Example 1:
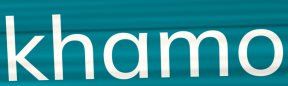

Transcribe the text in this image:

khamo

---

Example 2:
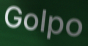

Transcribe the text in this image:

Golpo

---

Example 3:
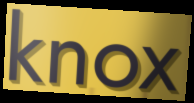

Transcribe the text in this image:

knox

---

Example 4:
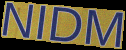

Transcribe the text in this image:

NIDM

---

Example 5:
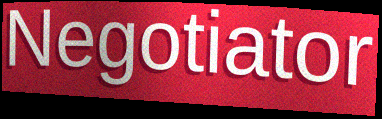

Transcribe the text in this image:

Negotiator